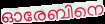
ഓരേബിനെ